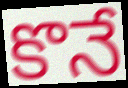
కొనే